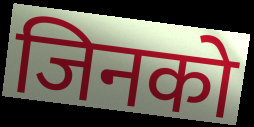
जिनको